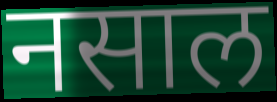
नसाल